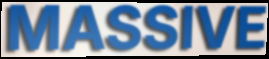
MASSIVE